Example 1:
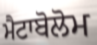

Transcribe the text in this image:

ਮੈਟਾਬੋਲੋਮ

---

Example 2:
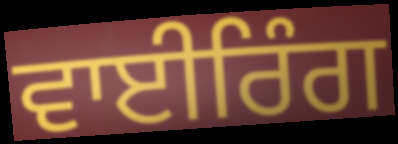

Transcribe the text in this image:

ਵਾਈਰਿੰਗ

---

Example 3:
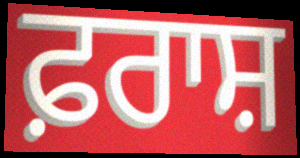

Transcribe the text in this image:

ਫ਼ਰਾਸ਼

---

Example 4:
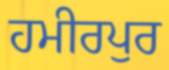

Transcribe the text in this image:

ਹਮੀਰਪੁਰ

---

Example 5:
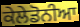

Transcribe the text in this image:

ਕੇਲੇਡੋਨੀਆ